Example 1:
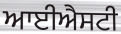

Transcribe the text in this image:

ਆਈਐਸਟੀ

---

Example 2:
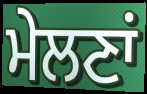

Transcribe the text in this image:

ਮੇਲਣਾਂ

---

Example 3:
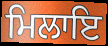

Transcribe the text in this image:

ਮਿਲਾਇ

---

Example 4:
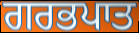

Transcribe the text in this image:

ਗਰਭਪਾਤ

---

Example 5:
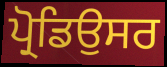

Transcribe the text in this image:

ਪ੍ਰੋਡਿਉਸਰ